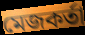
মেজকর্তা